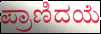
ಪ್ರಾಣಿದಯೆ